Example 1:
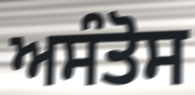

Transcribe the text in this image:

ਅਸੰਤੋਸ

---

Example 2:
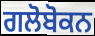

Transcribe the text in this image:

ਗਲੋਬੋਕਨ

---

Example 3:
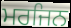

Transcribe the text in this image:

ਮਰਜਿਨ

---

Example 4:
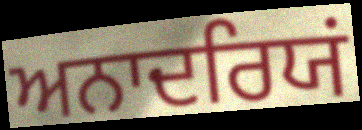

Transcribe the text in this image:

ਅਨਾਦਰਿਯਂ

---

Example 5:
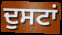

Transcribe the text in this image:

ਦੁਸਟਾਂ